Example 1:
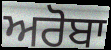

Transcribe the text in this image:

ਅਰੋਬਾ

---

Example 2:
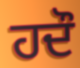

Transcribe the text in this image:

ਹਦੌ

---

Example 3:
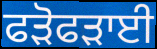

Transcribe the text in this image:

ਫੜੋਫੜਾਈ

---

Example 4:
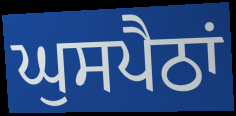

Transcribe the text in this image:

ਘੁਸਪੈਠਾਂ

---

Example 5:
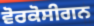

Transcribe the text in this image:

ਵੋਰਕੋਸੀਗਨ